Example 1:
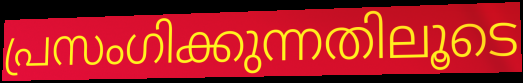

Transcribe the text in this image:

പ്രസംഗിക്കുന്നതിലൂടെ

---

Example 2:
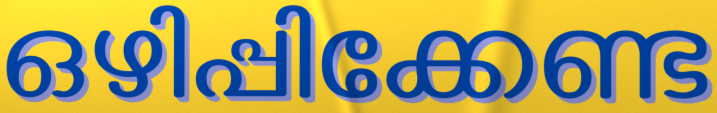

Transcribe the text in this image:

ഒഴിപ്പിക്കേണ്ട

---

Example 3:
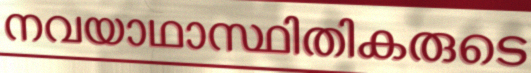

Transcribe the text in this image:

നവയാഥാസ്ഥിതികരുടെ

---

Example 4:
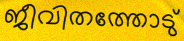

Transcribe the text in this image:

ജീവിതത്തോടു്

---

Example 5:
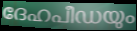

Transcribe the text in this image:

ദേഹപീഡയും